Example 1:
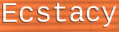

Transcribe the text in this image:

Ecstacy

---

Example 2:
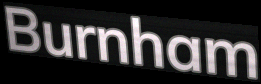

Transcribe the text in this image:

Burnham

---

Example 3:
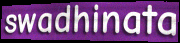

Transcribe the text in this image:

swadhinata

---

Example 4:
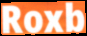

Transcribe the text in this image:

Roxb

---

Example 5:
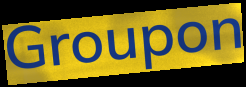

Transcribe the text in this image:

Groupon